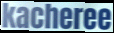
kacheree